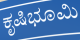
ಕೃಷಿಭೂಮಿ